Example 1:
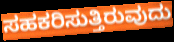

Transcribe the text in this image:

ಸಹಕರಿಸುತ್ತಿರುವುದು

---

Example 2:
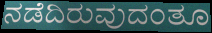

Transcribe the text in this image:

ನಡೆದಿರುವುದಂತೂ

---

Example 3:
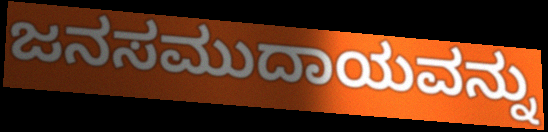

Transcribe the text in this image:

ಜನಸಮುದಾಯವನ್ನು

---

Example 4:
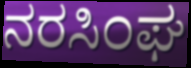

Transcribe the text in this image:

ನರಸಿಂಘ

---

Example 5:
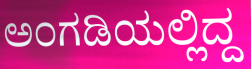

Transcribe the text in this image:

ಅಂಗಡಿಯಲ್ಲಿದ್ದ